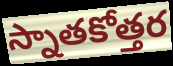
స్నాతకోత్తర